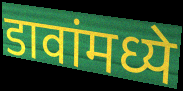
डावांमध्ये